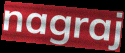
nagraj